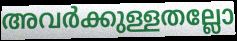
അവർക്കുള്ളതല്ലോ